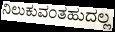
ನಿಲುಕುವಂತಹುದಲ್ಲ